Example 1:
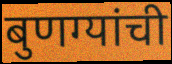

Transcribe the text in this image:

बुणग्यांची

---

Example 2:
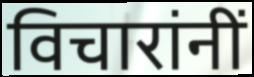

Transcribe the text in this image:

विचारांनीं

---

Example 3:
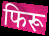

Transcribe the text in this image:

फिरू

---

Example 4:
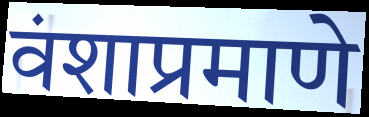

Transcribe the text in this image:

वंशाप्रमाणे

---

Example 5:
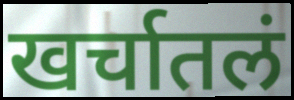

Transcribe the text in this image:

खर्चातलं